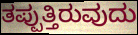
ತಪ್ಪುತ್ತಿರುವುದು